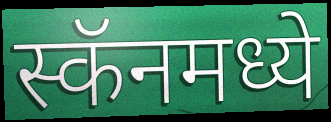
स्कॅनमध्ये